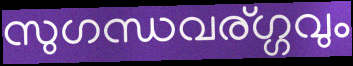
സുഗന്ധവര്ഗ്ഗവും